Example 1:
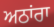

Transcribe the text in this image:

ਅਠਾਂਰਾ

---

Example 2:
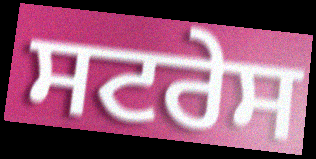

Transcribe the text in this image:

ਸਟਰੇਸ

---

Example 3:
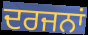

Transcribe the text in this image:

ਦਰਜਨਾਂ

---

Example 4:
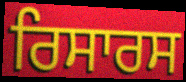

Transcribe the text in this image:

ਰਿਸਾਰਸ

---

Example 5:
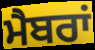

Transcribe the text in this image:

ਮੈਬਰਾਂ